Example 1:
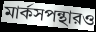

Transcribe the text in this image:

মার্কসপন্থারও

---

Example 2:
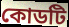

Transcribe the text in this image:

কোডটি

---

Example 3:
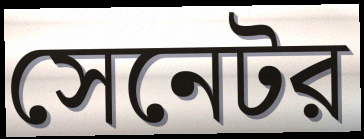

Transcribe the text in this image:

সেনেটর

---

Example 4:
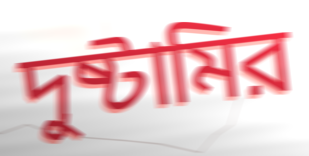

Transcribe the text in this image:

দুষ্টামির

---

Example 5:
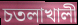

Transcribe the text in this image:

চতলাখালী